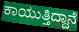
ಕಾಯುತ್ತಿದ್ದಾನೆ